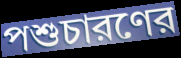
পশুচারণের